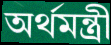
অর্থমন্ত্রী